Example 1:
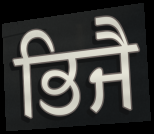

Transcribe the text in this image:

ਭਿਜੈ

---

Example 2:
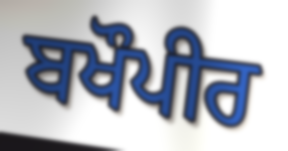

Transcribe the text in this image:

ਬਖੌਪੀਰ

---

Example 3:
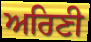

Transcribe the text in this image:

ਅਰਿਣੀ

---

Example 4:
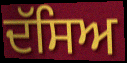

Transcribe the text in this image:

ਦੱਸਿਅ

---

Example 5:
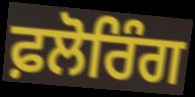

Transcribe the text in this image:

ਫ਼ਲੋਰਿੰਗ